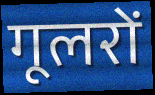
गूलरों